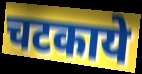
चटकाये